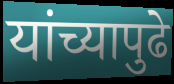
यांच्यापुढे